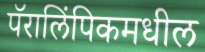
पॅरालिंपिकमधील